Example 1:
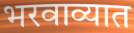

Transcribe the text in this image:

भरवाव्यात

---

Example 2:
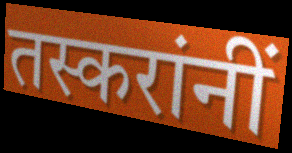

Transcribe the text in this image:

तस्करांनीं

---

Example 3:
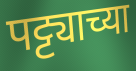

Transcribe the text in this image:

पट्ट्याच्या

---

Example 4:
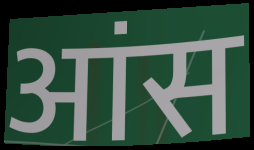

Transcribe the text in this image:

आंस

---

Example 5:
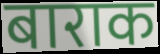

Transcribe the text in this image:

बाराक